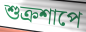
শুক্রশাপে